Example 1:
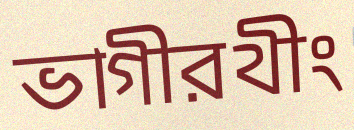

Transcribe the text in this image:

ভাগীরথীং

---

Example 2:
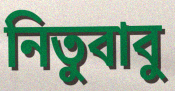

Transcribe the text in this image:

নিতুবাবু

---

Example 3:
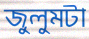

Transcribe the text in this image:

জুলুমটা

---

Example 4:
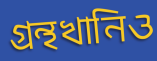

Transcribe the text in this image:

গ্রন্থখানিও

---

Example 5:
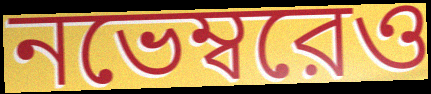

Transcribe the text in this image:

নভেম্বরেও